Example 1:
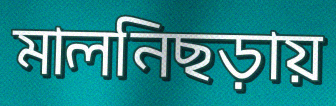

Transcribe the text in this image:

মালনিছড়ায়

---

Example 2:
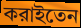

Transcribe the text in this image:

করাইতেন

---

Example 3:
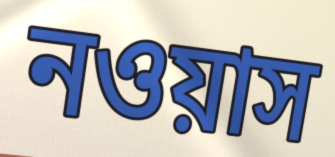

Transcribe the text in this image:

নওয়াস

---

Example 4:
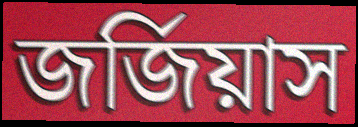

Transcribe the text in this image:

জর্জিয়াস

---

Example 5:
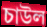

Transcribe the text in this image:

চাউল